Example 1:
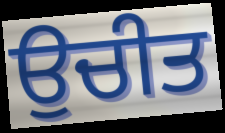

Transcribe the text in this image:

ਉਚੀਤ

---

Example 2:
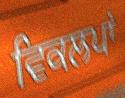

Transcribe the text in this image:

ਵਿਕਲਪਾਂ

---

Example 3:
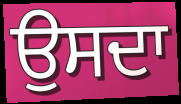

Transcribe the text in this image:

ਉਸਦਾ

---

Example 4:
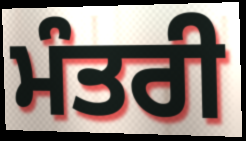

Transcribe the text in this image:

ਮੰਤਰੀ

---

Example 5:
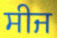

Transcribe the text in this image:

ਸੀਜ